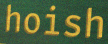
hoish